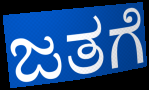
ಜತಗೆ